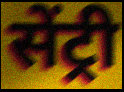
सेंट्री